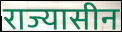
राज्यासीन